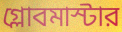
গ্লোবমাস্টার